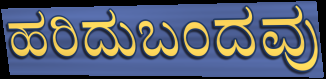
ಹರಿದುಬಂದವು